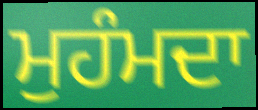
ਮੁਹੰਮਦਾ